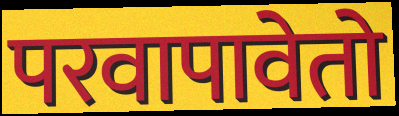
परवापावेतो